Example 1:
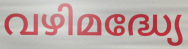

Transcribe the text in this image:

വഴിമദ്ധ്യേ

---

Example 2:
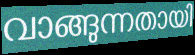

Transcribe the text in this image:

വാങ്ങുന്നതായി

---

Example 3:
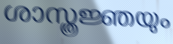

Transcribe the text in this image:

ശാസ്ത്രജ്ഞയും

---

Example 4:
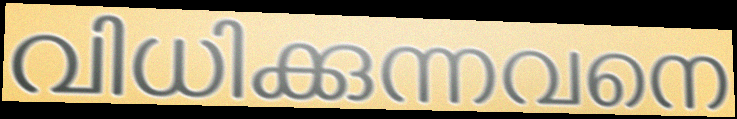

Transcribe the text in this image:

വിധിക്കുന്നവനെ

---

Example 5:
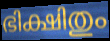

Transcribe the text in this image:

ഭിക്ഷിതും